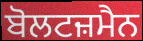
ਬੋਲਟਜ਼ਮੈਨ